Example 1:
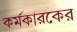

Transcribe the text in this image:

কর্মকারকের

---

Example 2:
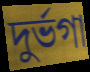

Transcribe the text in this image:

দুর্ভগা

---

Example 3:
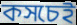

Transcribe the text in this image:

কসচেই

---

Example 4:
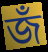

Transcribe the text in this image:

জঁ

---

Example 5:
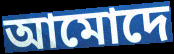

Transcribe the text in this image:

আমোদে